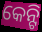
କେନ୍ଟି